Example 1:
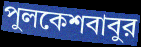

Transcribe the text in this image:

পুলকেশবাবুর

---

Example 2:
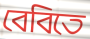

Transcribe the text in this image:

বেবিতে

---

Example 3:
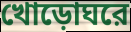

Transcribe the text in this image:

খোড়োঘরে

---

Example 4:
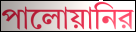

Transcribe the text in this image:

পালোয়ানির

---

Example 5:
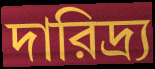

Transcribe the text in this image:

দারিদ্র্য